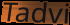
Tadvi